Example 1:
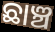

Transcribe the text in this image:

ଛାଞ୍ଚ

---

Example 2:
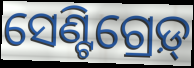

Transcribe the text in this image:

ସେଣ୍ଟିଗ୍ରେଡ଼୍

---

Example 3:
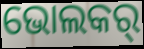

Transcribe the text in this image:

ଭୋଲକର୍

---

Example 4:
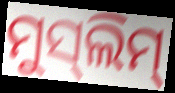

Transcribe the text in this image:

ମୁସ୍‌ଲିମ୍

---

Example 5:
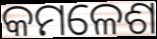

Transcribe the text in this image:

କମଳେଶ